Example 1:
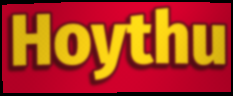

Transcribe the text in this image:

Hoythu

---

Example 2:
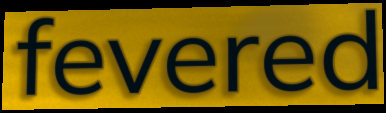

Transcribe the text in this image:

fevered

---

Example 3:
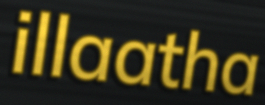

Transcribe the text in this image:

illaatha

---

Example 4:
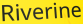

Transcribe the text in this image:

Riverine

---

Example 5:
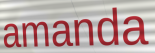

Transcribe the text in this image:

amanda